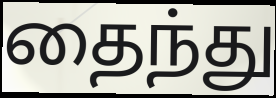
தைந்து